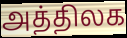
அத்திலக